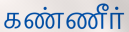
கண்ணீர்